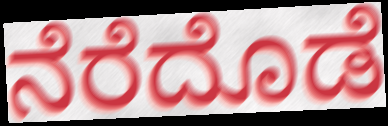
ನೆರೆದೊಡೆ